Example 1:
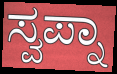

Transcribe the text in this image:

ಸ್ವಪ್ನಾ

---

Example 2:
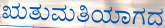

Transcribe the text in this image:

ಋತುಮತಿಯಾಗದ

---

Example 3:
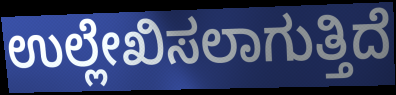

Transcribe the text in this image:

ಉಲ್ಲೇಖಿಸಲಾಗುತ್ತಿದೆ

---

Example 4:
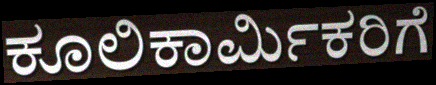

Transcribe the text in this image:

ಕೂಲಿಕಾರ್ಮಿಕರಿಗೆ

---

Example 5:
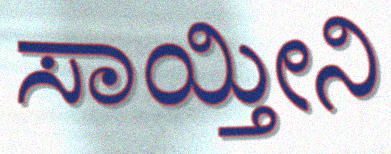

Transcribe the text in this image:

ಸಾಯ್ತೀನಿ